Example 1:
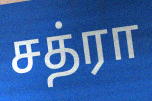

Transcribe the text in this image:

சத்ரா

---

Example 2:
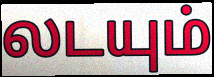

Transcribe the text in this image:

லடயும்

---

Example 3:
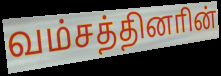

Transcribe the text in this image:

வம்சத்தினரின்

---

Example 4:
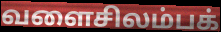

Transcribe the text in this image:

வளைசிலம்பக்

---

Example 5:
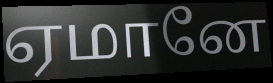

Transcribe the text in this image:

ஏமானே